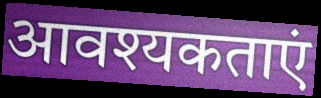
आवश्‍यकताएं